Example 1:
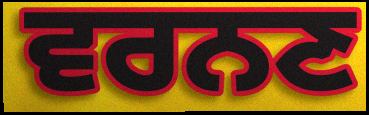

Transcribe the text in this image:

ਵਰਨਣ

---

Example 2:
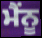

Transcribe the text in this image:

ਮੈਂਨੂ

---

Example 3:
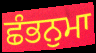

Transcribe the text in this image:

ਛੰਭਨੁਮਾ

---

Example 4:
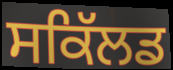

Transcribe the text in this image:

ਸਕਿੱਲਡ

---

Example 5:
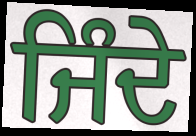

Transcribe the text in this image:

ਜਿੰਦੇ